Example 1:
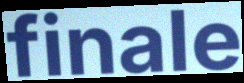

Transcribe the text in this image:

finale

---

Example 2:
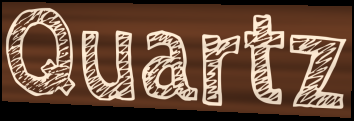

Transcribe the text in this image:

Quartz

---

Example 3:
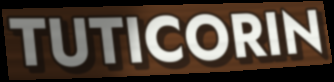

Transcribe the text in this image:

TUTICORIN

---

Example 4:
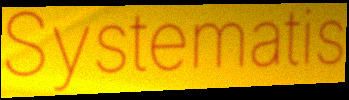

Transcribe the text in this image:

Systematis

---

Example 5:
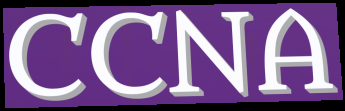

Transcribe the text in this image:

CCNA